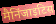
मैनिंजाइटिस